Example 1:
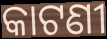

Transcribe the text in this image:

କାଟଣୀ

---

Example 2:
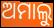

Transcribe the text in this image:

ଅମାଲୁ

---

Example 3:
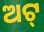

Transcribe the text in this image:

ଅଟ୍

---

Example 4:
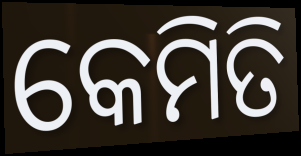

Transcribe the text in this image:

କେମିତି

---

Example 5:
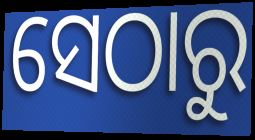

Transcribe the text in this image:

ସେଠାରୁ